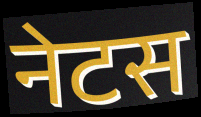
नेटस